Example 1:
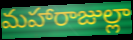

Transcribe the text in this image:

మహారాజుల్లా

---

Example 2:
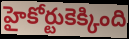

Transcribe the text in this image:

హైకోర్టుకెక్కింది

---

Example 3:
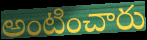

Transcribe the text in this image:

అంటించారు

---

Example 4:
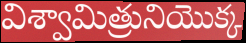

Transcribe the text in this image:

విశ్వామిత్రునియొక్క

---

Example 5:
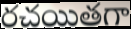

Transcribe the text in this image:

రచయితగా